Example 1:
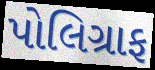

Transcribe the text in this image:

પોલિગ્રાફ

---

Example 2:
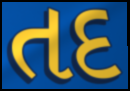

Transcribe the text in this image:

તદ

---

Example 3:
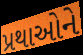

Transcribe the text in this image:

પ્રથાઓને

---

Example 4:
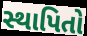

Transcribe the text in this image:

સ્થાપિતો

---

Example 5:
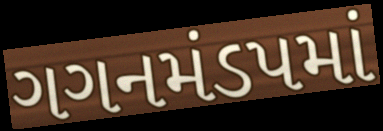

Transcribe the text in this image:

ગગનમંડપમાં